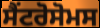
ਸੈਂਟਰੋਸੋਮਸ